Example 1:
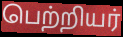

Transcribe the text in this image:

பெற்றியர்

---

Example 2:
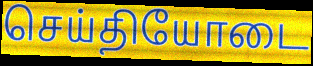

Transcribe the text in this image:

செய்தியோடை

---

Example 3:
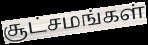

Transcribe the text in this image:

சூட்சமங்கள்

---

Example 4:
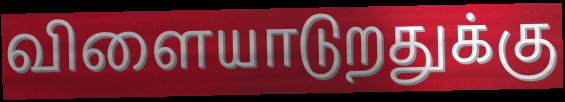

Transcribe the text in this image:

விளையாடுறதுக்கு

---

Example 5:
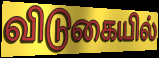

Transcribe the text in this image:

விடுகையில்